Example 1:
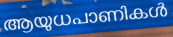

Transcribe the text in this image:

ആയുധപാണികൾ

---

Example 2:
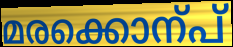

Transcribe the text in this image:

മരക്കൊന്പ്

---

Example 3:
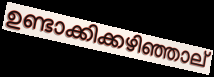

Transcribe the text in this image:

ഉണ്ടാക്കിക്കഴിഞ്ഞാല്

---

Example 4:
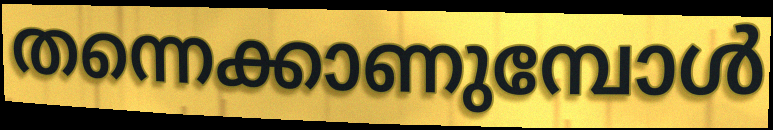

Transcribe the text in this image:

തന്നെക്കാണുമ്പോൾ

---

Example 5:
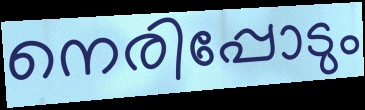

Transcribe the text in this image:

നെരിപ്പോടും